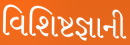
વિશિષ્ટજ્ઞાની